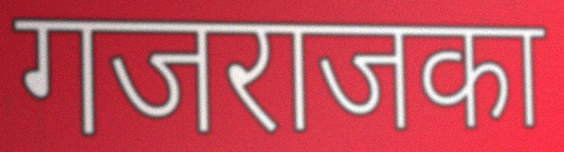
गजराजका